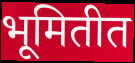
भूमितीत